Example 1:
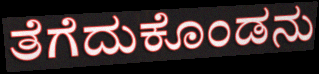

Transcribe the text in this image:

ತೆಗೆದುಕೊಂಡನು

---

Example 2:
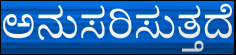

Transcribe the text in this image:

ಅನುಸರಿಸುತ್ತದೆ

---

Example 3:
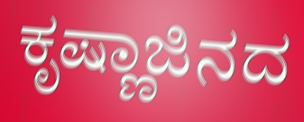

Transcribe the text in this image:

ಕೃಷ್ಣಾಜಿನದ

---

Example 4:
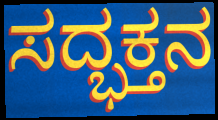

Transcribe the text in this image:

ಸದ್ಭಕ್ತನ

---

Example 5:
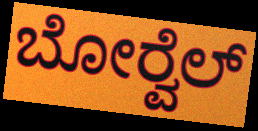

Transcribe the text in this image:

ಬೋರ್‍ವೆಲ್